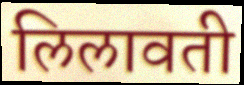
लिलावती